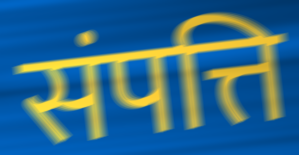
संपत्ति